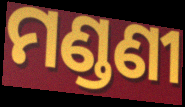
ମଣ୍ଡଣୀ